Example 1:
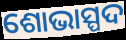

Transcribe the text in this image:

ଶୋଭାସ୍ପଦ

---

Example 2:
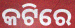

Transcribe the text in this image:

କଟିରେ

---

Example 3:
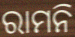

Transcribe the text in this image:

ରାମନି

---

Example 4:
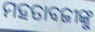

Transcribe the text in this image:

ମହତାବଜୀଙ୍କୁ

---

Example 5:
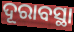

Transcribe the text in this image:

ଦୂରାବସ୍ଥା